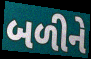
બળીને